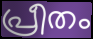
പ്രീതം